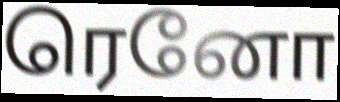
ரெனோ